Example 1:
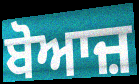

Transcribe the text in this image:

ਬੋਆਜ਼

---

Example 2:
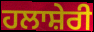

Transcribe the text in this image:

ਹਲਾਸ਼ੇਰੀ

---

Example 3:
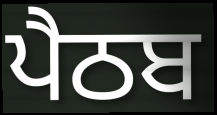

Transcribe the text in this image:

ਪੈਠਬ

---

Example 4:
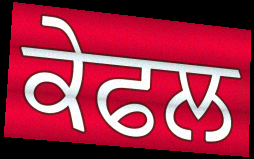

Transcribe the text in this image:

ਕੇਫਲ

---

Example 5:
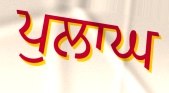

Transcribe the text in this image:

ਪੁਲਾਘ